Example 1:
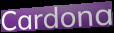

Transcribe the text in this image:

Cardona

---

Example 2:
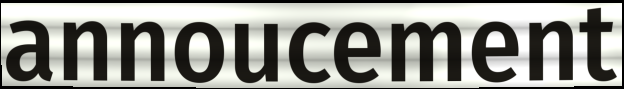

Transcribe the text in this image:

annoucement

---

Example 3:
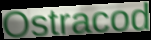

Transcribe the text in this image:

Ostracod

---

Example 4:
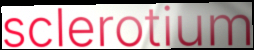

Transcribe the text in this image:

sclerotium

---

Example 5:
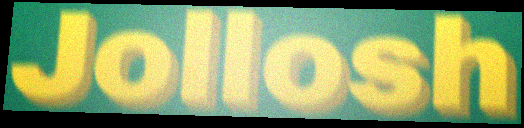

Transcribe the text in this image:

Jollosh